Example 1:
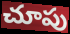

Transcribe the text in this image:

చూపు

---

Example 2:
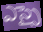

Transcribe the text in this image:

ఎస్సై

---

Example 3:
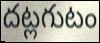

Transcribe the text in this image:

దట్లగుటం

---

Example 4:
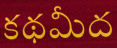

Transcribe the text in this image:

కథమీద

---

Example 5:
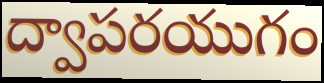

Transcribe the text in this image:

ద్వాపరయుగం